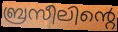
ബ്രസീലിന്റെ